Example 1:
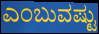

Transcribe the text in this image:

ಎಂಬುವಷ್ಟು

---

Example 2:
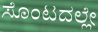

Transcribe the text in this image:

ಸೊಂಟದಲ್ಲೇ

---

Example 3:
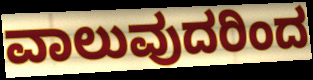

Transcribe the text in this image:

ವಾಲುವುದರಿಂದ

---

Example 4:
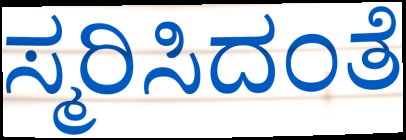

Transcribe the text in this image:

ಸ್ಮರಿಸಿದಂತೆ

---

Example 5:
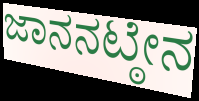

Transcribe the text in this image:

ಜಾನನಟ್ಠೇನ